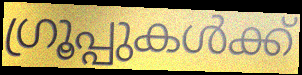
ഗ്രൂപ്പുകൾക്ക്